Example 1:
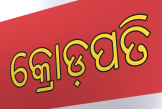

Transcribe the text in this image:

କ୍ରୋଡ଼ପତି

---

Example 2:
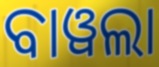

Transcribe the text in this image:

ବାୱଲା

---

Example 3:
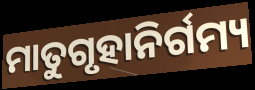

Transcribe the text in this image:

ମାତୁଗୃହାନିର୍ଗମ୍ୟ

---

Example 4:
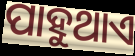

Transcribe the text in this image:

ପାହୁଥାଏ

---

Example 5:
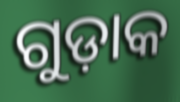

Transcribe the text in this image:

ଗୁଡ଼ାକ